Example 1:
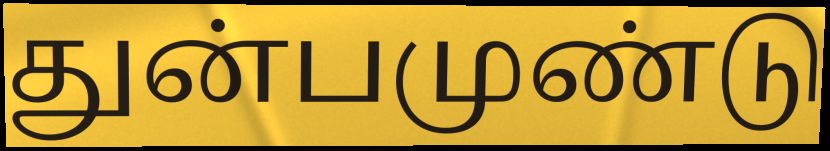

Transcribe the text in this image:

துன்பமுண்டு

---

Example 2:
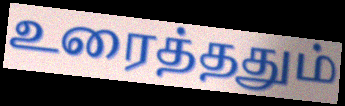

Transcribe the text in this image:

உரைத்ததும்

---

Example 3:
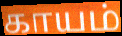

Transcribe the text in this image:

காயம்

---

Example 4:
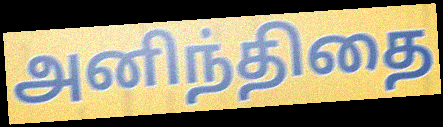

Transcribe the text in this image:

அனிந்திதை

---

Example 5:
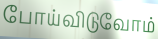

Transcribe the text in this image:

போய்விடுவோம்